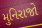
મુનિરાજો